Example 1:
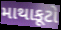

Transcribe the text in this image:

માથાકૂટો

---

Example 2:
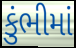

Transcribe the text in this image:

કુંભીમાં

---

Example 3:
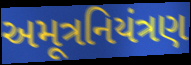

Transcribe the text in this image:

અમૂત્રનિયંત્રણ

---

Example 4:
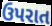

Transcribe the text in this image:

ઉપરાત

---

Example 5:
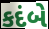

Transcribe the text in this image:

કદંબે